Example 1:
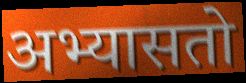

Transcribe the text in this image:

अभ्यासतो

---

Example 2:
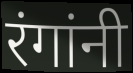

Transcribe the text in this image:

रंगांनी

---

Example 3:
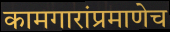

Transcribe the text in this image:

कामगारांप्रमाणेच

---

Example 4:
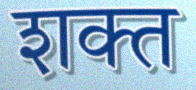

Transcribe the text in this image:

शक्त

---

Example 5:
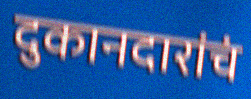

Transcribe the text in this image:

दुकानदारांचं